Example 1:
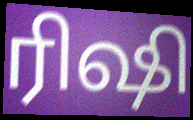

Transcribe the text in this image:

ரிஷி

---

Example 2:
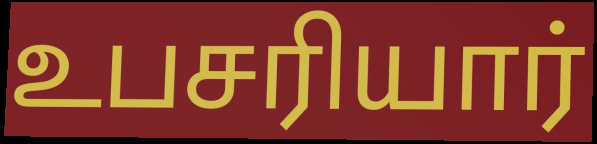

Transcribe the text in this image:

உபசரியார்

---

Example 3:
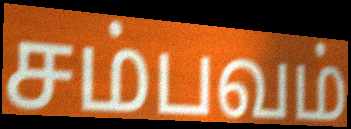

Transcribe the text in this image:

சம்பவம்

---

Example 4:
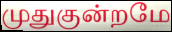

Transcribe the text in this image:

முதுகுன்றமே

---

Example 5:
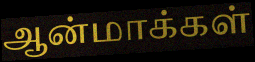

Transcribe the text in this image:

ஆன்மாக்கள்